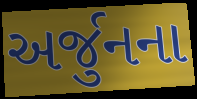
અર્જુનના